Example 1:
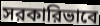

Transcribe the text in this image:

সরকারিভাবে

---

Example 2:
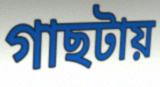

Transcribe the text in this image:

গাছটায়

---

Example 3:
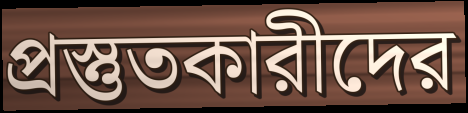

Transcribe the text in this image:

প্রস্তুতকারীদের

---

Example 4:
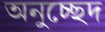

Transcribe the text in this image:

অনুচ্ছেদ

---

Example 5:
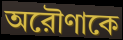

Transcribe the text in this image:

অরৌণাকে